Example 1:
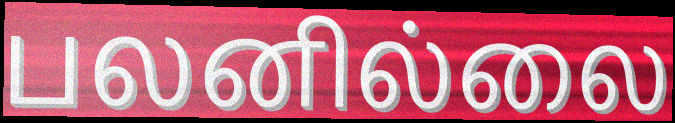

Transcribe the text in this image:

பலனில்லை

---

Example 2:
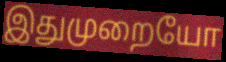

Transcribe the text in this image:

இதுமுறையோ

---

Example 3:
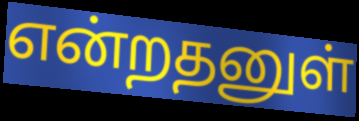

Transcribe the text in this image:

என்றதனுள்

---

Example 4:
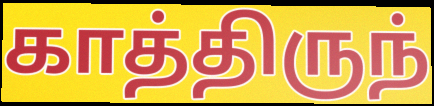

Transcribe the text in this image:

காத்திருந்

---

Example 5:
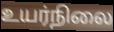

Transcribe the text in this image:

உயர்நிலை